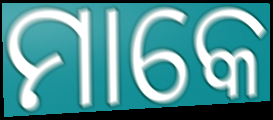
ମାକେ